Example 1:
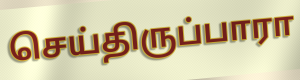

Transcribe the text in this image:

செய்திருப்பாரா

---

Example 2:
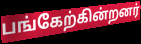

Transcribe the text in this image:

பங்கேற்கின்றனர்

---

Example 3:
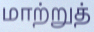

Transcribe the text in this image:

மாற்றுத்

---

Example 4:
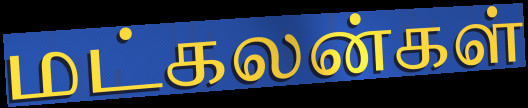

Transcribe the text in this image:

மட்கலன்கள்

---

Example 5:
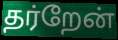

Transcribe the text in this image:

தர்றேன்